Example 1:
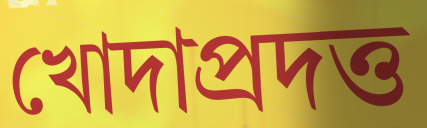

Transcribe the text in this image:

খোদাপ্রদত্ত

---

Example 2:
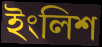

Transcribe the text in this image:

ইংলিশ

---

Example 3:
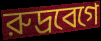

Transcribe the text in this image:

রুদ্রবেগে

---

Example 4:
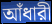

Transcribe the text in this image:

আঁধারী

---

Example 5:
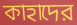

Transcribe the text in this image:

কাহাদের